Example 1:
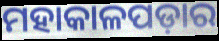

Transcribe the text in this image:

ମହାକାଳପଡ଼ାର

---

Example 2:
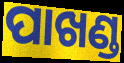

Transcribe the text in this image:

ପାଖଣ୍ଡ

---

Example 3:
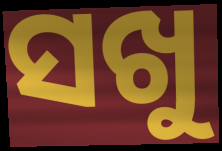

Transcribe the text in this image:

ସଖୁ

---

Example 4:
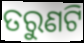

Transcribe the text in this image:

ତରୁଣଟି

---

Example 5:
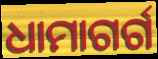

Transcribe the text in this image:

ଧାମାଗର୍ଗ